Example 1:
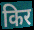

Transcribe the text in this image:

किर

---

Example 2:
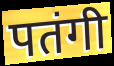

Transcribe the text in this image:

पतंगी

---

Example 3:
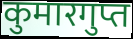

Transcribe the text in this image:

कुमारगुप्त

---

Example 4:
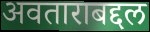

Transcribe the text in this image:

अवताराबद्दल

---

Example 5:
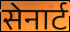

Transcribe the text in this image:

सेनार्ट